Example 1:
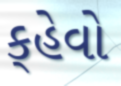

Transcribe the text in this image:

ક્‌હેવો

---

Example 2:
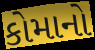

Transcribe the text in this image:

કોમાનો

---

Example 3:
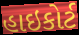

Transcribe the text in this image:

હાઇકોર્ટ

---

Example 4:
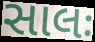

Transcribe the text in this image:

સાલઃ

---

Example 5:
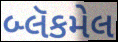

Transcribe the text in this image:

બ્લૅકમેલ